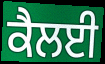
ਕੈਲਈ